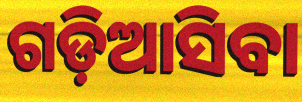
ଗଡ଼ିଆସିବା